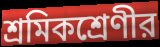
শ্রমিকশ্রেণীর